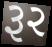
રૂર